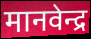
मानवेन्द्र